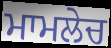
ਮਾਮਲੇਚ